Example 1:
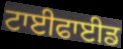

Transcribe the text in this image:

ਟਾਈਫਾਈਡ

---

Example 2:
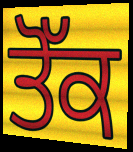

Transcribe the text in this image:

ਤੋੱਕ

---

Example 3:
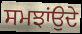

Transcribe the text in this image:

ਸਮਝਾਂਉਦੇ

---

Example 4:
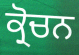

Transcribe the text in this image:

ਕ੍ਰੋਚਨ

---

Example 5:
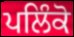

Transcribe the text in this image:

ਪਲਿੰਕੋ